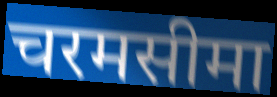
चरमसीमा